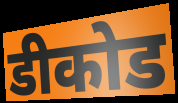
डीकोड